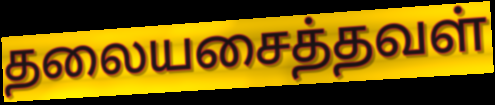
தலையசைத்தவள்